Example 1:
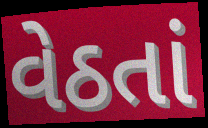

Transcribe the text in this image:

વેઠતાં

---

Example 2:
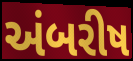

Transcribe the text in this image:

અંબરીષ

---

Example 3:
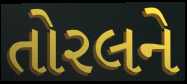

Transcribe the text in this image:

તોરલને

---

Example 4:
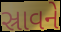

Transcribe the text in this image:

સ્રાવને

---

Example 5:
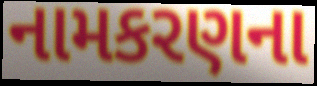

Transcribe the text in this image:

નામકરણના